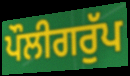
ਪੌਲੀਗਰੁੱਪ